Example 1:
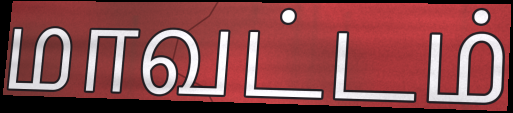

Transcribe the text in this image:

மாவட்டம்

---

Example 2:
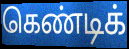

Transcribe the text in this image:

கெண்டிக்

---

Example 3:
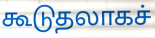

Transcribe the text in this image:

கூடுதலாகச்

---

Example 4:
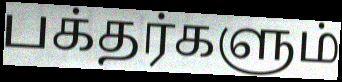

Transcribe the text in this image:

பக்தர்களும்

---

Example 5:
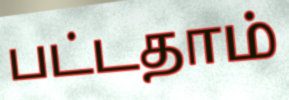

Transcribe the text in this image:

பட்டதாம்